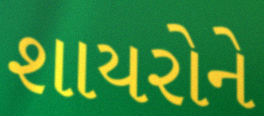
શાયરોને